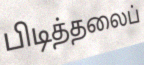
பிடித்தலைப்